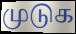
முடுக